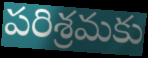
పరిశ్రమకు